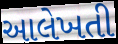
આલેખતી